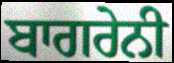
ਬਾਗਰੇਨੀ